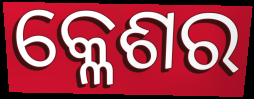
କ୍ଳେଶର